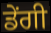
ਡੇਂਗੀ